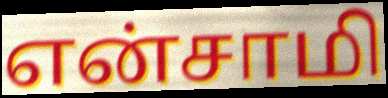
என்சாமி